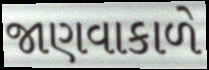
જાણવાકાળે